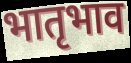
भातृभाव